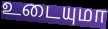
உடையுமா